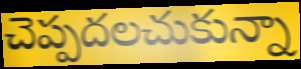
చెప్పదలచుకున్నా